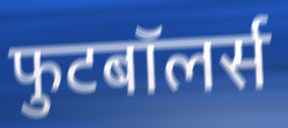
फुटबॉलर्स